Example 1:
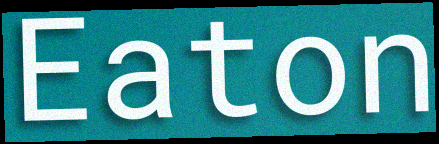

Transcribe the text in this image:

Eaton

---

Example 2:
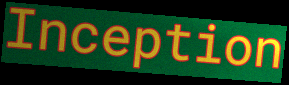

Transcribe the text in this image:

Inception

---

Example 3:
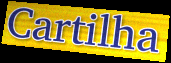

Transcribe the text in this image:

Cartilha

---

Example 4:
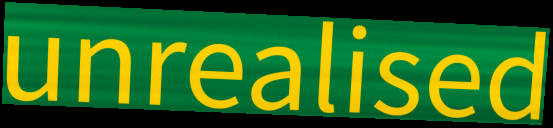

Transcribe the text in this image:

unrealised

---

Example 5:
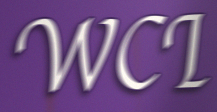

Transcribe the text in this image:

WCI